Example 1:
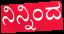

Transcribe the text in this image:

ನಿನ್ನಿಂದ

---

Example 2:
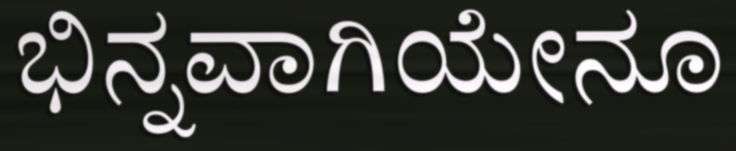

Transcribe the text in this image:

ಭಿನ್ನವಾಗಿಯೇನೂ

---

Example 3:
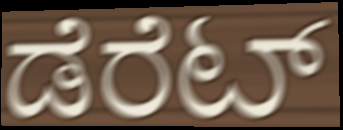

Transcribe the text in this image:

ಡೆರೆಟ್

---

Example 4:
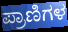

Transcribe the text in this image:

ಪ್ರಾಣಿಗಳ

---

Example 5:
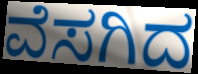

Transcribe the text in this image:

ವೆಸಗಿದ